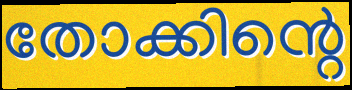
തോക്കിന്റെ